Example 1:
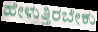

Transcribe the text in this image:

ಹೇಳುತ್ತಿರಬೇಕು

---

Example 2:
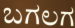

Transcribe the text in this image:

ಬಗಲಗ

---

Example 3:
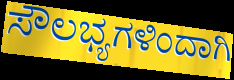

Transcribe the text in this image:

ಸೌಲಭ್ಯಗಳಿಂದಾಗಿ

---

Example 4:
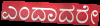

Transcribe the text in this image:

ಎಂದಾದರೇ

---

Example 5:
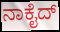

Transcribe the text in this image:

ನಾಕೈದ್